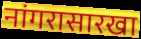
नांगरासारखा